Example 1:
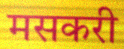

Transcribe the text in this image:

मसकरी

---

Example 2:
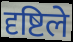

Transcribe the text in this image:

दृष्टिले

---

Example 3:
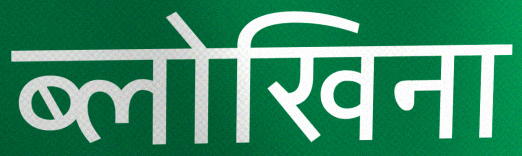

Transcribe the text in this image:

ब्लोखिना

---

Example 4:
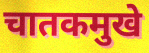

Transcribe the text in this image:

चातकमुखे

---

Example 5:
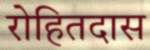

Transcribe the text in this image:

रोहितदास